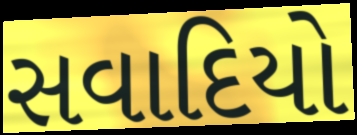
સવાદિયો